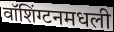
वॉशिंग्टनमधली